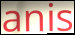
anis